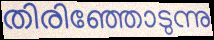
തിരിഞ്ഞോടുന്നു